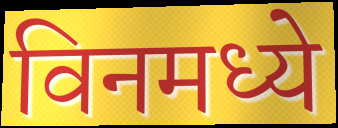
विनमध्ये